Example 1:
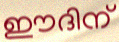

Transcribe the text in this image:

ഈദിന്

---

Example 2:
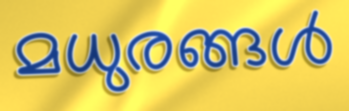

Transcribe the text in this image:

മധുരങ്ങൾ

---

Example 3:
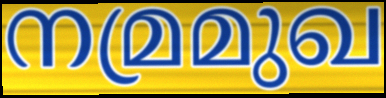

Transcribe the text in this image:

നമ്രമുഖ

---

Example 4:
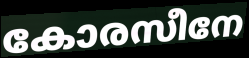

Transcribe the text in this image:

കോരസീനേ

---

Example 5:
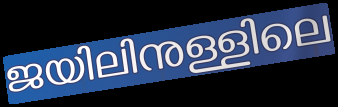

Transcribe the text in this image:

ജയിലിനുള്ളിലെ